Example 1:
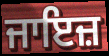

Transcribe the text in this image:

ਜਾਇਜ਼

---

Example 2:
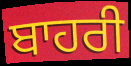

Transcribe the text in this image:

ਬਾਹਰੀ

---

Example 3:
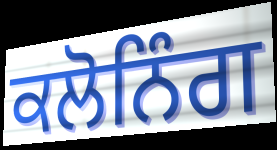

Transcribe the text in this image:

ਕਲੋਨਿੰਗ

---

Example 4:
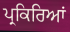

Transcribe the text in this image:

ਪ੍ਰਕਿਰਿਆਂ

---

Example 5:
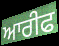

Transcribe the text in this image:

ਆਰੀਫ